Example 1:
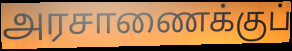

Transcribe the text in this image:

அரசாணைக்குப்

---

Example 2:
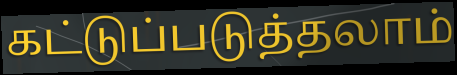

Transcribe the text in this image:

கட்டுப்படுத்தலாம்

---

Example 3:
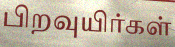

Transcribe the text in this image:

பிறவுயிர்கள்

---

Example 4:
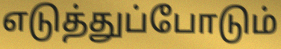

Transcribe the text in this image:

எடுத்துப்போடும்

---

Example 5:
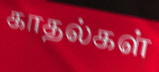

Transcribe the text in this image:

காதல்கள்